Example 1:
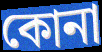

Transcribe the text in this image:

কোনা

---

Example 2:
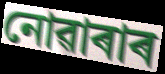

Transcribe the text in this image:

নোৱাৰাৰ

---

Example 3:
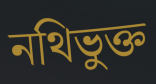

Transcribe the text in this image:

নথিভুক্ত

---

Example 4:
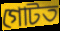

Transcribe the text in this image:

গোটত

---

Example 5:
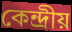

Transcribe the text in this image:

কেন্দ্ৰীয়